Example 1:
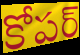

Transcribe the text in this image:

కోపర్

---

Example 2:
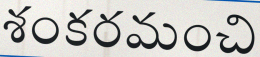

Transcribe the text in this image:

శంకరమంచి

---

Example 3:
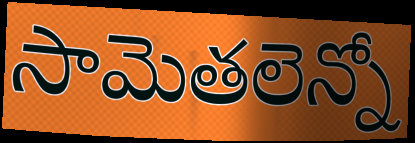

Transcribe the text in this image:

సామెతలెన్నో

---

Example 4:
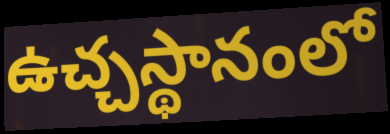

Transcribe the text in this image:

ఉచ్చస్థానంలో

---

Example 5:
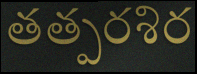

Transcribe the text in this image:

తత్పరశిర